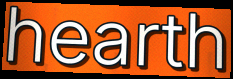
hearth